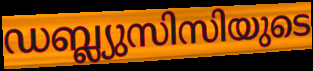
ഡബ്ല്യുസിസിയുടെ